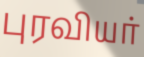
புரவியர்